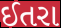
ઈતરા